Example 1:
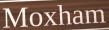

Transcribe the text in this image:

Moxham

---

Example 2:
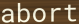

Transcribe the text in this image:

abort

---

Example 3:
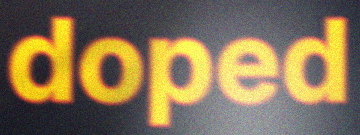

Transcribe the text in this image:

doped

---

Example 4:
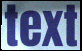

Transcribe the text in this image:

text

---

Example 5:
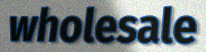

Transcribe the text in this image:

wholesale